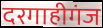
दरगाहीगंज